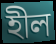
হীল